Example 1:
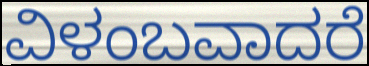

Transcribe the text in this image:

ವಿಳಂಬವಾದರೆ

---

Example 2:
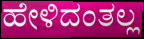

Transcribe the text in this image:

ಹೇಳಿದಂತಲ್ಲ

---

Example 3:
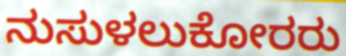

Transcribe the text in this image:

ನುಸುಳಲುಕೋರರು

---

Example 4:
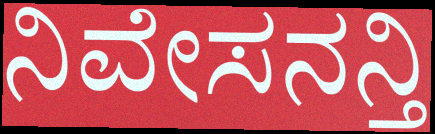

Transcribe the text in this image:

ನಿವೇಸನನ್ತಿ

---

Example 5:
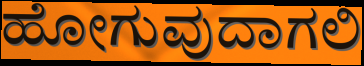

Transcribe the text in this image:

ಹೋಗುವುದಾಗಲಿ